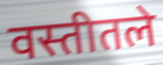
वस्तीतले